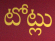
టోట్లు